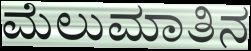
ಮೆಲುಮಾತಿನ